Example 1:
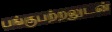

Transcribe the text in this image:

பங்குபற்றலுடன்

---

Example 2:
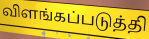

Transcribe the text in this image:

விளங்கப்படுத்தி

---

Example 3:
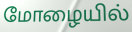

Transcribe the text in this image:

மோழையில்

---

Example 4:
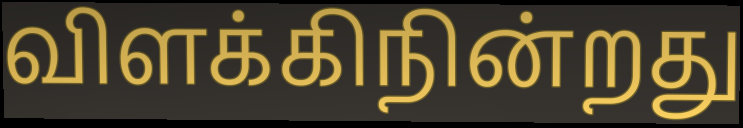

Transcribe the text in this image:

விளக்கிநின்றது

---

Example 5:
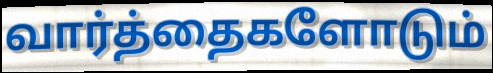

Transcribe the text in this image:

வார்த்தைகளோடும்